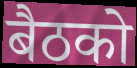
बैठको